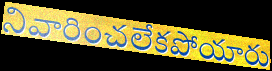
నివారించలేకపోయారు